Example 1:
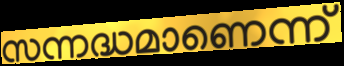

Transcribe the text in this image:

സന്നദ്ധമാണെന്ന്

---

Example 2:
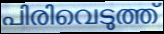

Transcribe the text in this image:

പിരിവെടുത്ത്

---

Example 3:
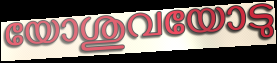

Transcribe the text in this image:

യോശുവയോടു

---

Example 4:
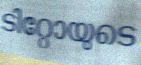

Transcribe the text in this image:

ടിറ്റോയുടെ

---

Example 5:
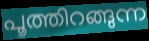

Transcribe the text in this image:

പൂത്തിറങ്ങുന്ന